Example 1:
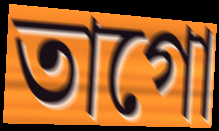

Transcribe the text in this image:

তাগো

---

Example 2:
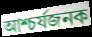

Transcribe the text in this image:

আশ্চর্যজনক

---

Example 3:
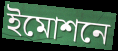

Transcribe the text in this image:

ইমোশনে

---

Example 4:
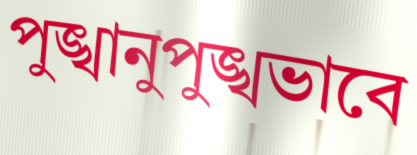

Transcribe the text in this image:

পুঙ্খানুপুঙ্খভাবে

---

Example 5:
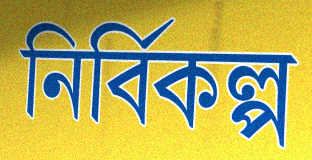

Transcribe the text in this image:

নির্বিকল্প